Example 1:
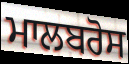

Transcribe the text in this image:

ਮਾਲਬਰੋਸ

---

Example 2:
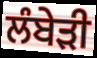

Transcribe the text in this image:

ਲੰਬੇੜੀ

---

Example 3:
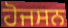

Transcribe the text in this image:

ਹੋਜਸਨ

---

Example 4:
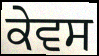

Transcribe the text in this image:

ਕੇਵਸ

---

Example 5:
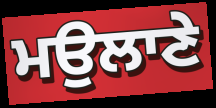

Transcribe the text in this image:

ਮਉਲਾਣੇ